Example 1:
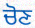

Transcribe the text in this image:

ਚੋਣ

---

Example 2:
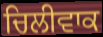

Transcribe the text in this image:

ਚਿਲੀਵਾਕ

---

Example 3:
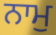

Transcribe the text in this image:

ਨਾਮੁ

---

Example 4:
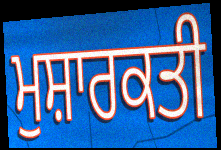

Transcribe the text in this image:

ਮੁਸ਼ਾਰਕਤੀ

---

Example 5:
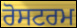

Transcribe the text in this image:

ਰੋਸਟਰਮ